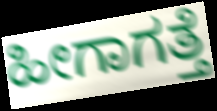
ಹೀಗಾಗತ್ತೆ